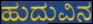
ಹುದುವಿನ